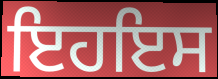
ਇਹਇਸ